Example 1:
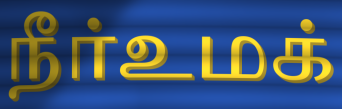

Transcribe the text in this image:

நீர்உமக்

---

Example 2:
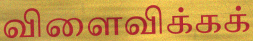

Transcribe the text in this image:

விளைவிக்கக்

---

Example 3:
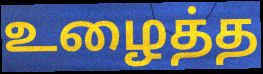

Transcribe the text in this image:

உழைத்த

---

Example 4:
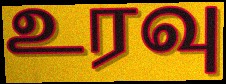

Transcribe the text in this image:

உரவு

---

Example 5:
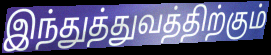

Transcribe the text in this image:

இந்துத்துவத்திற்கும்